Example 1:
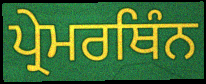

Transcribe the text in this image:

ਪ੍ਰੇਮਰਥਿੰਨ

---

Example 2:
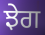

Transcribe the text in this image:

ਝੇਗ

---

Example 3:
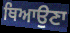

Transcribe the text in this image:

ਥਿਆਉਣਾ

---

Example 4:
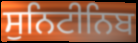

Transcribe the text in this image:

ਸੁਨਿਟੀਨਿਬ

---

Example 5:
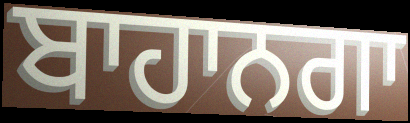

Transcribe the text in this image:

ਬਾਹਾਨਗਾ